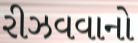
રીઝવવાનો